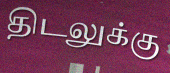
திடலுக்கு